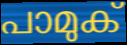
പാമുക്